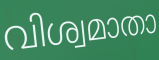
വിശ്വമാതാ